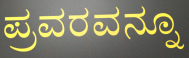
ಪ್ರವರವನ್ನೂ